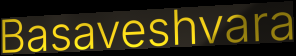
Basaveshvara